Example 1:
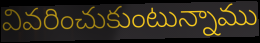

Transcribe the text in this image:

వివరించుకుంటున్నాము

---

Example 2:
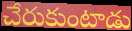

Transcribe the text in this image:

చేరుకుంటాడు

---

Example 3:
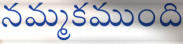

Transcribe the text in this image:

నమ్మకముంది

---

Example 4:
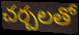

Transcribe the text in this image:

చర్చలతో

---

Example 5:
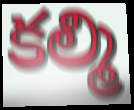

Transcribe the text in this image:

కల్మి